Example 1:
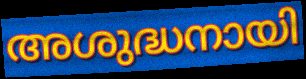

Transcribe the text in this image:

അശുദ്ധനായി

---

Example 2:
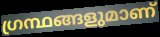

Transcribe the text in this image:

ഗ്രന്ഥങ്ങളുമാണ്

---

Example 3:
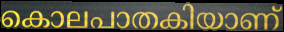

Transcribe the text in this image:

കൊലപാതകിയാണ്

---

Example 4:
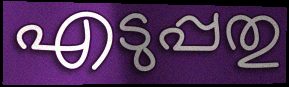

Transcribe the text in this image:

എടുപ്പതു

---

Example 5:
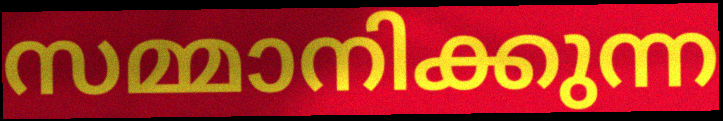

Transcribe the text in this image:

സമ്മാനിക്കുന്ന